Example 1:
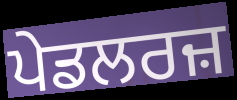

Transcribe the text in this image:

ਪੇਡਲਰਜ਼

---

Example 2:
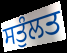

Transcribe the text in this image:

ਸਤੁੰਲਤ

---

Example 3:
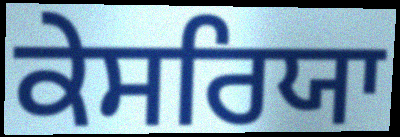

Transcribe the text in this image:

ਕੇਸਰਿਯਾ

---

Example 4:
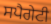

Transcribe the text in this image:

ਸਪੈਗੇਟੀ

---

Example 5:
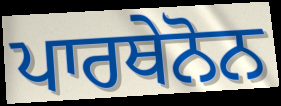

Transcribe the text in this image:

ਪਾਰਥੇਨੋਨ